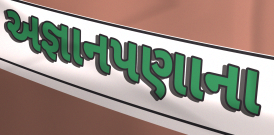
અજ્ઞાનપણાના